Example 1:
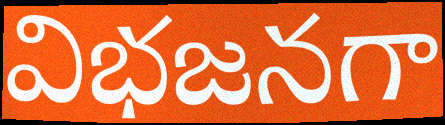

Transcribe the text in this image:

విభజనగా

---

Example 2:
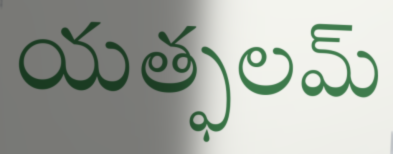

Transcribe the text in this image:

యత్ఫలమ్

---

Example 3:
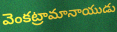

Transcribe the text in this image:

వెంకట్రామానాయుడు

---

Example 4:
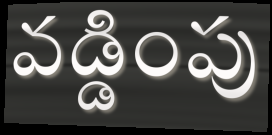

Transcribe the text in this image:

వడ్డింపు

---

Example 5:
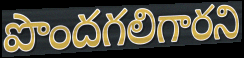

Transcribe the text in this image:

పొందగలిగారని